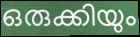
ഒരുക്കിയും